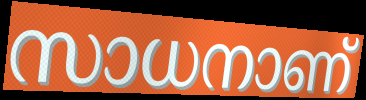
സാധനാണ്